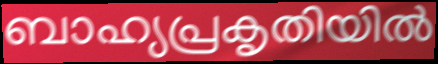
ബാഹ്യപ്രകൃതിയിൽ